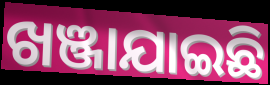
ଖଞ୍ଜାଯାଇଛି